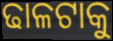
ଢାଳଟାକୁ